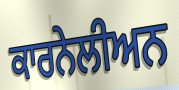
ਕਾਰਨੇਲੀਅਨ